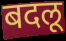
बदलू